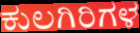
ಕುಲಗಿರಿಗಳ